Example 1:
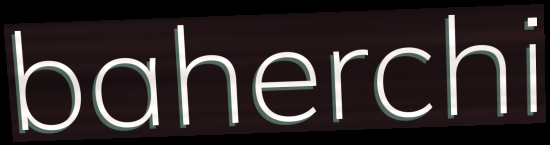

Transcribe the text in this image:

baherchi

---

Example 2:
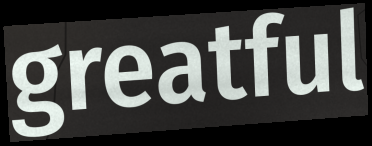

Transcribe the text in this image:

greatful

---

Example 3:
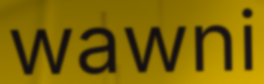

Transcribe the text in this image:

wawni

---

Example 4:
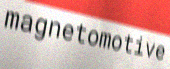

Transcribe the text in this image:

magnetomotive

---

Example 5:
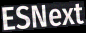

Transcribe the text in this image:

ESNext